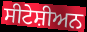
ਸੀਟੇਸ਼ੀਅਨ